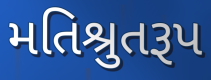
મતિશ્રુતરૂપ